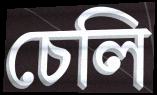
চেলি